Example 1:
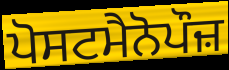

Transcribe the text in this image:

ਪੋਸਟਮੈਨੋਪੌਜ਼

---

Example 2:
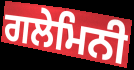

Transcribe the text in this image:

ਗਲੇਮਿਨੀ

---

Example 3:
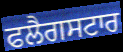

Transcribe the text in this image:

ਫਲੈਗਸਟਾਰ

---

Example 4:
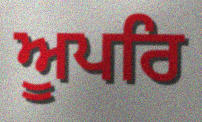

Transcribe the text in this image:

ਅੂਪਰਿ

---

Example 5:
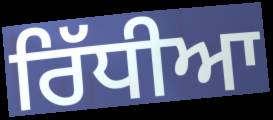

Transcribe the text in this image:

ਰਿੱਧੀਆ